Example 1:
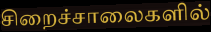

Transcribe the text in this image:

சிறைச்சாலைகளில்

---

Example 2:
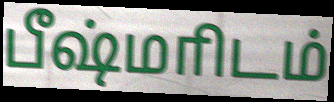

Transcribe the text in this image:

பீஷ்மரிடம்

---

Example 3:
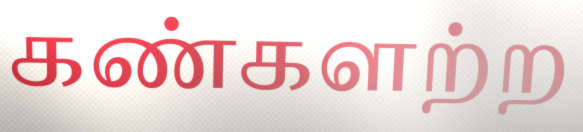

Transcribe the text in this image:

கண்களற்ற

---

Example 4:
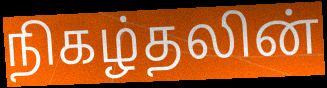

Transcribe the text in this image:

நிகழ்தலின்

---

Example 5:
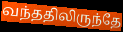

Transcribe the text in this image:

வந்ததிலிருந்தே